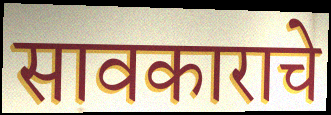
सावकाराचे